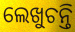
ଲେଖୁଚନ୍ତି